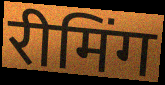
रीमिंग